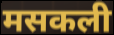
मसकली